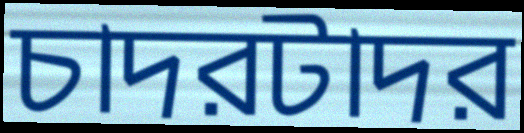
চাদরটাদর